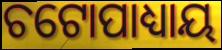
ଚଟୋପାଧ୍ୟାୟ